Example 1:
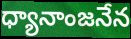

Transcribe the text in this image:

ధ్యానాంజనేన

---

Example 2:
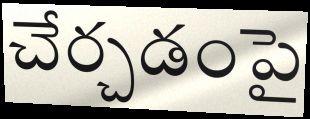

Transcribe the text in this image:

చేర్చడంపై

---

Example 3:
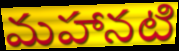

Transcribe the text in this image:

మహానటి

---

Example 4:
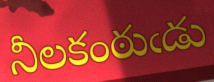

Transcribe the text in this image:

నీలకంఠుఁడు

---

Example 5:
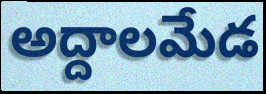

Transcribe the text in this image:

అద్దాలమేడ